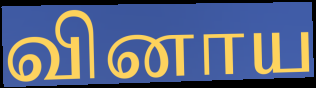
வினாய